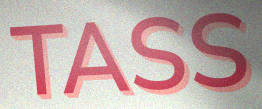
TASS